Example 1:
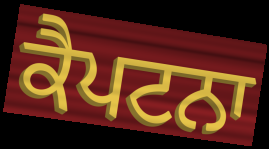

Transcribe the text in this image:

ਕੈਪਟਨਾ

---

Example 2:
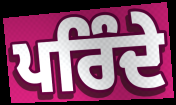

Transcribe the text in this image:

ਪਰਿੰਦੇ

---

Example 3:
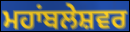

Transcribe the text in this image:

ਮਹਾਂਬਲੇਸ਼ਵਰ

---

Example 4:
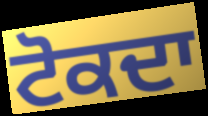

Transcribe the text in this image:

ਟੋਕਦਾ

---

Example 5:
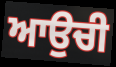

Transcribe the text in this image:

ਆਉਚੀ